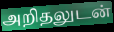
அறிதலுடன்